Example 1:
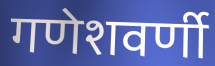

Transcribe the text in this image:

गणेशवर्णी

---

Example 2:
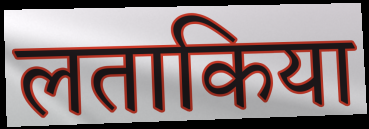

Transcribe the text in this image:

लताकिया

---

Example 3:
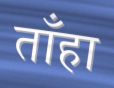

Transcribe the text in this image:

ताँहा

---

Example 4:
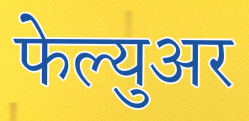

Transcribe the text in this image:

फेल्युअर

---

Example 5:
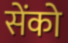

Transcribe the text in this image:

सेंको